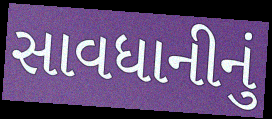
સાવધાનીનું